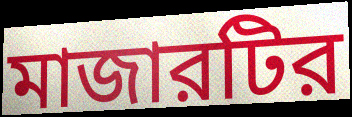
মাজারটির